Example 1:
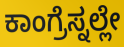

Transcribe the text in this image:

ಕಾಂಗ್ರೆಸ್ನಲ್ಲೇ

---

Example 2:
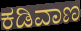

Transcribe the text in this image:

ಕಡಿವಾಣ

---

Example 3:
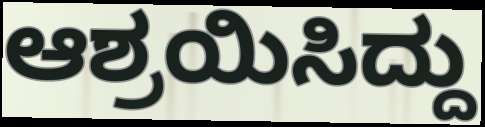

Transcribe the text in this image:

ಆಶ್ರಯಿಸಿದ್ದು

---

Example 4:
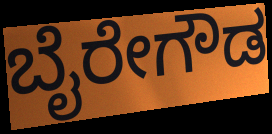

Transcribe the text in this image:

ಬೈರೇಗೌಡ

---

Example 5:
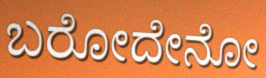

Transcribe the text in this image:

ಬರೋದೇನೋ